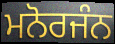
ਮਨੋਰਜੰਨ